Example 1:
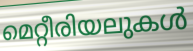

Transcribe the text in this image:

മെറ്റീരിയലുകൾ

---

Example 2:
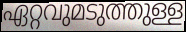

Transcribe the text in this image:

ഏറ്റവുമടുത്തുള്ള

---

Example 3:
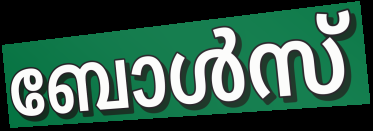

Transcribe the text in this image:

ബോൾസ്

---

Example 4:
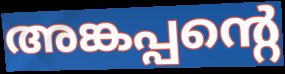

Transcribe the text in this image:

അങ്കപ്പന്റെ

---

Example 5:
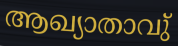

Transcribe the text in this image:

ആഖ്യാതാവു്